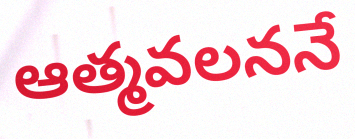
ఆత్మవలననే